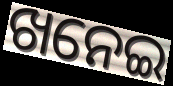
ଖନେଇ